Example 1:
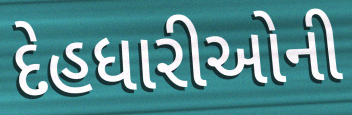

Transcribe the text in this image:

દેહધારીઓની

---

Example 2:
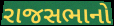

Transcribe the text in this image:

રાજસભાનો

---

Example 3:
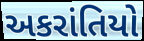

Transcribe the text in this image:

અકરાંતિયો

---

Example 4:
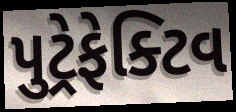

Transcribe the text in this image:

પુટ્રેફેક્ટિવ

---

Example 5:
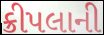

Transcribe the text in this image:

ક્રીપલાની